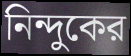
নিন্দুকের